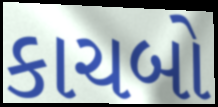
કાચબો